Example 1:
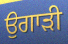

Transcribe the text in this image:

ਉਗਾੜੀ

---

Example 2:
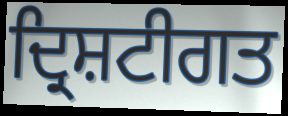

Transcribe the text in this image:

ਦ੍ਰਿਸ਼ਟੀਗਤ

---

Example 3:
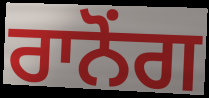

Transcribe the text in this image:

ਰਾਨੋਂਗ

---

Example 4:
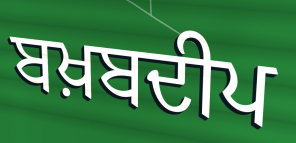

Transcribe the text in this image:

ਬਖ਼ਬਦੀਪ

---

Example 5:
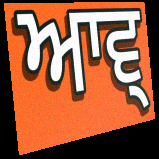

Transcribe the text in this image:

ਆਵ੍